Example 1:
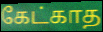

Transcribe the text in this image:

கேட்காத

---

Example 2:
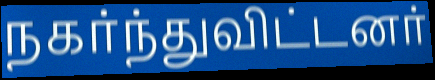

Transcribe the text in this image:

நகர்ந்துவிட்டனர்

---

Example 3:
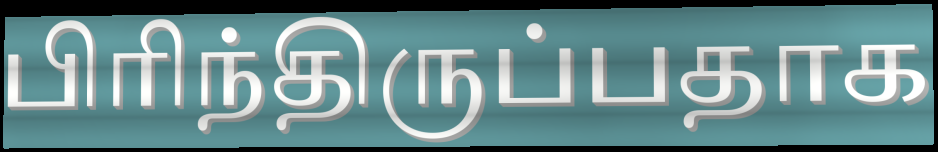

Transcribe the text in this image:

பிரிந்திருப்பதாக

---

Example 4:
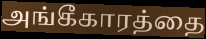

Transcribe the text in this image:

அங்கீகாரத்தை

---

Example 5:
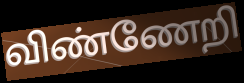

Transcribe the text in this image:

விண்ணேறி